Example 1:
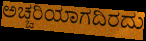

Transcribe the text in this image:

ಅಚ್ಚರಿಯಾಗದಿರದು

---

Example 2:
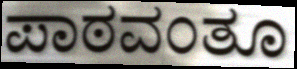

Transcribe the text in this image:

ಪಾಠವಂತೂ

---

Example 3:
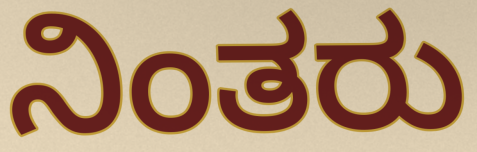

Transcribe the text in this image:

ನಿಂತರು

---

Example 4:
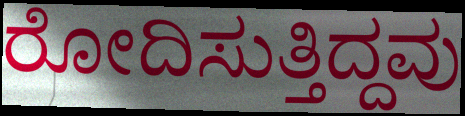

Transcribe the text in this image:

ರೋದಿಸುತ್ತಿದ್ದವು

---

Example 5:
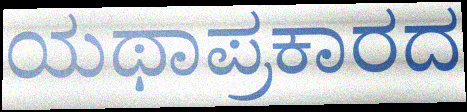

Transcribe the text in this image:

ಯಥಾಪ್ರಕಾರದ